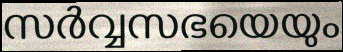
സർവ്വസഭയെയും